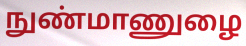
நுண்மாணுழை